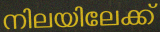
നിലയിലേക്ക്